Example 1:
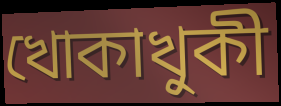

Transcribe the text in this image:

খোকাখুকী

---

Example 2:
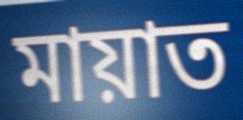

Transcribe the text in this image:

মায়াত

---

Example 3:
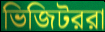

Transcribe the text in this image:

ভিজিটররা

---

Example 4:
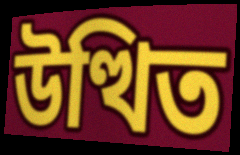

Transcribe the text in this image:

উত্থিত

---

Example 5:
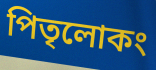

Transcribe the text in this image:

পিতৃলোকং